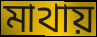
মাথায়